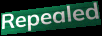
Repealed